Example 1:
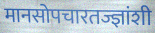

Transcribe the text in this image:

मानसोपचारतज्ज्ञांशी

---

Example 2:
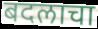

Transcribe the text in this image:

बदलाचा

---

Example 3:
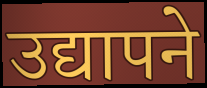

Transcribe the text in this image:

उद्यापने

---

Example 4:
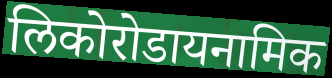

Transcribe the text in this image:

लिकोरोडायनामिक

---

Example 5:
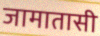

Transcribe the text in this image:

जामातासी